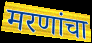
मरणांचा